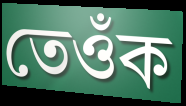
তেওঁক